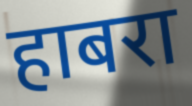
हाबरा